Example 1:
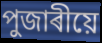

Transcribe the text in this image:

পুজাৰীয়ে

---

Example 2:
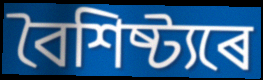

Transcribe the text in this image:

বৈশিষ্ট্যৰে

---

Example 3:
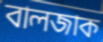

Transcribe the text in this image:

বালজাক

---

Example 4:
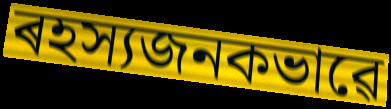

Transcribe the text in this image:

ৰহস্যজনকভাৱে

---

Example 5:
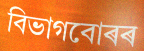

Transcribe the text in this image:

বিভাগবোৰৰ